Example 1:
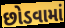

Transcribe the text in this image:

છોડવામાં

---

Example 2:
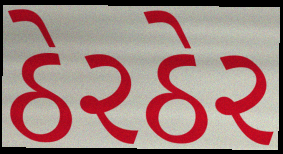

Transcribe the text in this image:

ઠેરઠેર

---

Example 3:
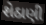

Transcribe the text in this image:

શેઠાણી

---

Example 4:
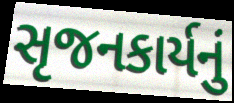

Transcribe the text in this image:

સૃજનકાર્યનું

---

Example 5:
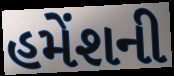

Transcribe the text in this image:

હમેંશની